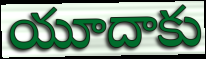
యూదాకు